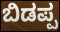
ಬಿಡಪ್ಪ